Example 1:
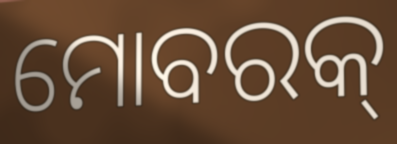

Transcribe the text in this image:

ମୋବରକ୍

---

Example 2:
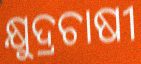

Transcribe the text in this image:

କ୍ଷୁଦ୍ରଚାଷୀ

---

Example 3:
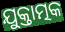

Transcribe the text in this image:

ଯୁକ୍ତାତ୍ମକ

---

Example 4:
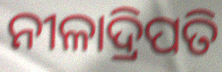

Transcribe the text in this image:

ନୀଳାଦ୍ରିପତି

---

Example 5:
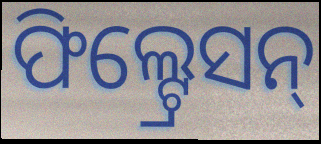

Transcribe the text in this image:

ଫିଲ୍ଟ୍ରେସନ୍